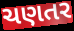
ચણતર